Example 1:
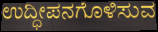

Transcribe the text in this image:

ಉದ್ಧೀಪನಗೊಳಿಸುವ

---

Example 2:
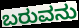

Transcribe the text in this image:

ಬರುವನು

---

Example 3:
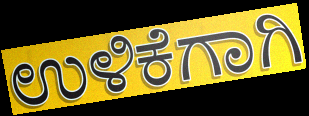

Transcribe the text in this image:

ಉಳಿಕೆಗಾಗಿ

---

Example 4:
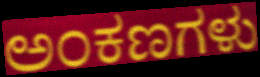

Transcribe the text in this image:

ಅಂಕಣಗಳು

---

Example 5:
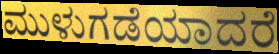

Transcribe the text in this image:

ಮುಳುಗಡೆಯಾದರೆ